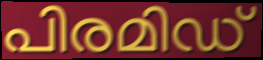
പിരമിഡ്